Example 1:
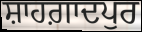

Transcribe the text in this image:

ਸ਼ਾਹਗ਼ਾਦਪੁਰ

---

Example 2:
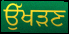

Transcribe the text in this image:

ਉੱਖੜਣ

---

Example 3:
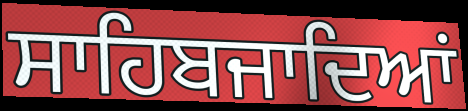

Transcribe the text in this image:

ਸਾਹਿਬਜਾਦਿਆਂ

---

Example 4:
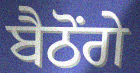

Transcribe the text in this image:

ਬੈਠੋਂਗੇ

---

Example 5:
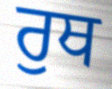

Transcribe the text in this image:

ਰੁਥ